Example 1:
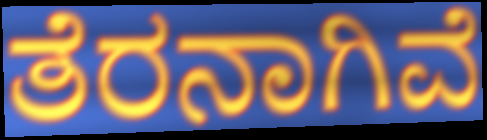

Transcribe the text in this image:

ತೆರನಾಗಿವೆ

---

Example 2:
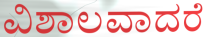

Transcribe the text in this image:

ವಿಶಾಲವಾದರೆ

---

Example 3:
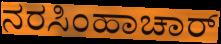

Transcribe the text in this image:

ನರಸಿಂಹಾಚಾರ್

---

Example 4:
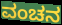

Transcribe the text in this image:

ವಂಚನ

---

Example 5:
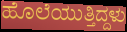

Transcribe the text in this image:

ಹೊಲೆಯುತ್ತಿದ್ದಳು